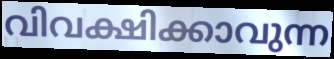
വിവക്ഷിക്കാവുന്ന